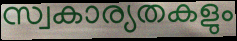
സ്വകാര്യതകളും